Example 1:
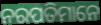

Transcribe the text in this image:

ନରପତିମାନେ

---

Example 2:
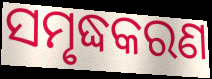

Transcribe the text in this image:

ସମୃଦ୍ଧକରଣ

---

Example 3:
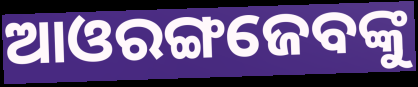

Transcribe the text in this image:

ଆଓରଙ୍ଗଜେବଙ୍କୁ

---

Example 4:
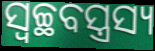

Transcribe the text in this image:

ସ୍ଵଚ୍ଛବସ୍ତ୍ରସ୍ୟ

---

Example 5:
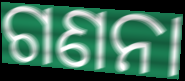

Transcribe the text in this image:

ଗଣନା